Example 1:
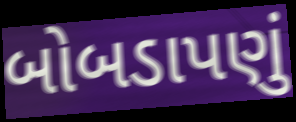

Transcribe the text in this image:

બોબડાપણું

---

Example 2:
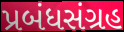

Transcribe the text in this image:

પ્રબંધસંગ્રહ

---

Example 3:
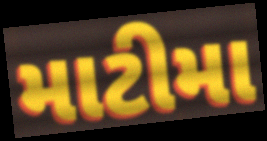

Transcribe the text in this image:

માટીમા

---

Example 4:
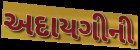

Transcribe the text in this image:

અદાયગીની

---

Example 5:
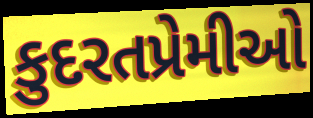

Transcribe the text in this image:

કુદરતપ્રેમીઓ